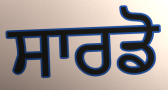
ਸਾਰਡੋ